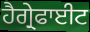
ਹੈਗ੍ਰੇਫਾਈਟ